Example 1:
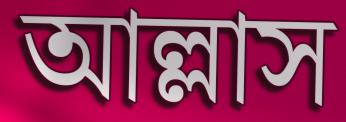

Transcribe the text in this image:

আল্লাস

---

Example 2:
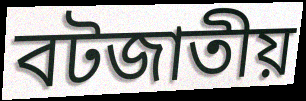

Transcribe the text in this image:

বটজাতীয়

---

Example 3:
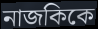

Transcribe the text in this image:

নাজকিকে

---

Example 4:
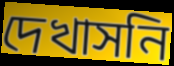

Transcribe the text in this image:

দেখাসনি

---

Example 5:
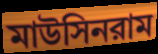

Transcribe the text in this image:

মাউসিনরাম